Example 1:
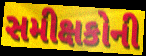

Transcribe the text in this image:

સમીક્ષકોની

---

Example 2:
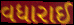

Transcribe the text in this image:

વધારાઈ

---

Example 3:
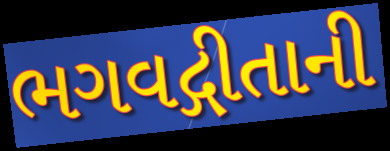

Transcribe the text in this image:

ભગવદ્ગીતાની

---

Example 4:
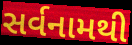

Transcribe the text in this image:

સર્વનામથી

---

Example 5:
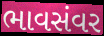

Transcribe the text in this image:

ભાવસંવર